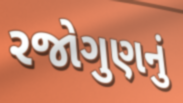
રજોગુણનું